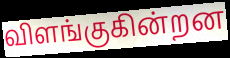
விளங்குகின்றன